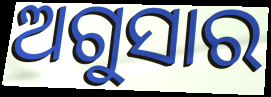
ଅଗୁସାର